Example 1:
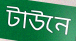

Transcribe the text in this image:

টাউনে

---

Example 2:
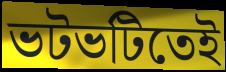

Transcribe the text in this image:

ভটভটিতেই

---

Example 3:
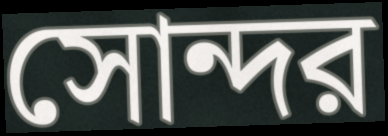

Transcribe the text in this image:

সোন্দর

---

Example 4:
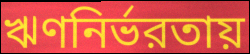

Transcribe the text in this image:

ঋণনির্ভরতায়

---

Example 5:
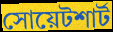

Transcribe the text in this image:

সোয়েটশার্ট